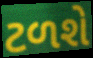
ટળશે